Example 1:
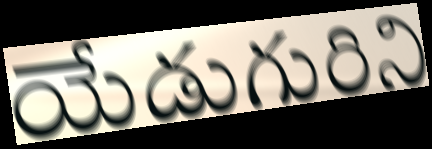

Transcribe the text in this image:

యేడుగురిని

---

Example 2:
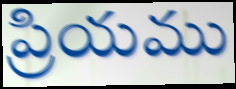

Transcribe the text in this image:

ప్రియము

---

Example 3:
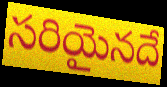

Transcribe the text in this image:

సరియైనదే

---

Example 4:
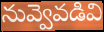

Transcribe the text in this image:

నువ్వెవడివి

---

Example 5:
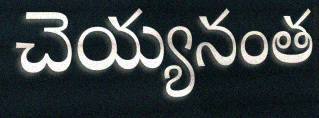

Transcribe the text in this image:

చెయ్యనంత